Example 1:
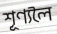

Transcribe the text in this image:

শূণ্যলৈ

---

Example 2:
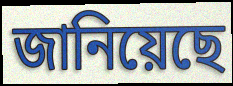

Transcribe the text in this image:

জানিয়েছে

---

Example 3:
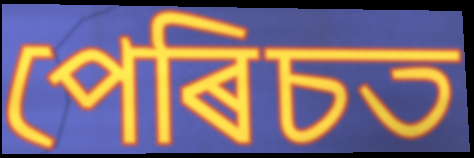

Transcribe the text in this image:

পেৰিচত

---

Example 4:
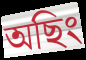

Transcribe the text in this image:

অছিং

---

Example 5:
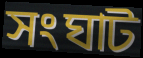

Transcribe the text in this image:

সংঘাট